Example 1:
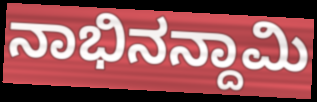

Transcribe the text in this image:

ನಾಭಿನನ್ದಾಮಿ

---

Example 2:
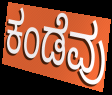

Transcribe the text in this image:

ಕಂಡೆವು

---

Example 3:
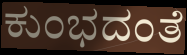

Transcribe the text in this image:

ಕುಂಭದಂತೆ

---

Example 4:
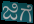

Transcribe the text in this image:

ಜಿಗೆ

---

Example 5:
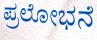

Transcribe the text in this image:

ಪ್ರಲೋಭನೆ